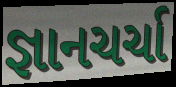
જ્ઞાનચર્ચા